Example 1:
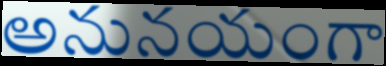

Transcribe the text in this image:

అనునయంగా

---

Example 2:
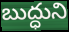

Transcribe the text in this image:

బుద్ధుని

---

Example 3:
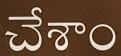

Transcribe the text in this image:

చేశాం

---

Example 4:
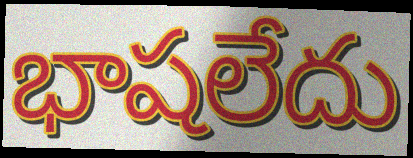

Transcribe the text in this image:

భాషలేదు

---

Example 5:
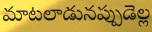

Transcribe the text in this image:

మాటలాడునప్పుడెల్ల